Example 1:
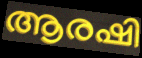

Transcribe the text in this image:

ആരഷി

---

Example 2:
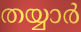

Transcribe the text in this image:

തയ്യാർ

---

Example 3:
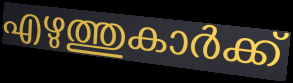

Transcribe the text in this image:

എഴുത്തുകാർക്ക്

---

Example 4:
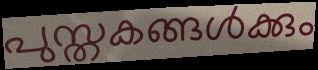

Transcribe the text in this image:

പുസ്തകങ്ങൾക്കും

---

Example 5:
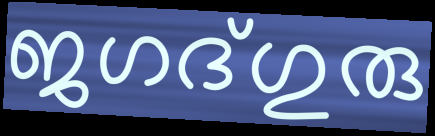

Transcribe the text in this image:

ജഗദ്ഗുരു